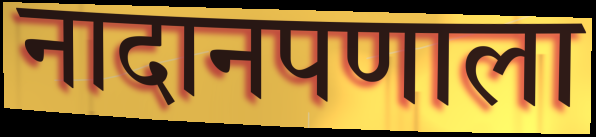
नादानपणाला